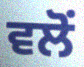
ਵਲੋਂ